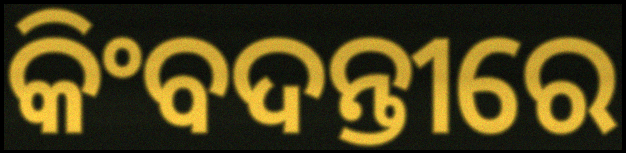
କିଂବଦନ୍ତୀରେ